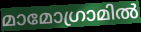
മാമോഗ്രാമിൽ